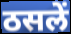
ठसलें